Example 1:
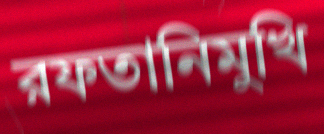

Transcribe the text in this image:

রফতানিমুখি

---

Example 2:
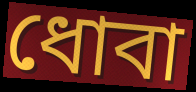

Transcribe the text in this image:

ধোবা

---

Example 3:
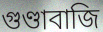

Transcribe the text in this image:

গুণ্ডাবাজি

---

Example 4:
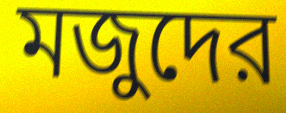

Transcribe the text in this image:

মজুদের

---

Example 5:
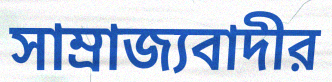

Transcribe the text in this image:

সাম্রাজ্যবাদীর